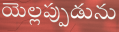
యెల్లప్పుడును